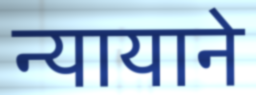
न्यायाने